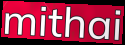
mithai